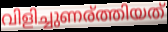
വിളിച്ചുണര്ത്തിയത്